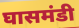
घासमंडी